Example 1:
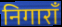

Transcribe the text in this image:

निगाराँ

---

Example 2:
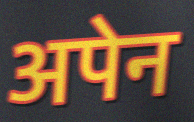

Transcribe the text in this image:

अपेन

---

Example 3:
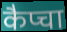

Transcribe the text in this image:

कैप्चा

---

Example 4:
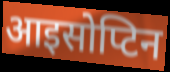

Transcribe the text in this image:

आइसोप्टिन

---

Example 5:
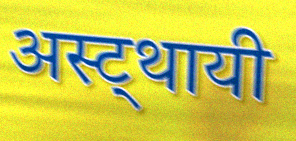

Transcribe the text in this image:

अस्ट्थायी